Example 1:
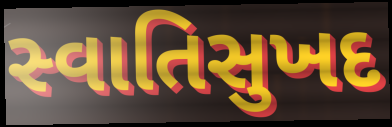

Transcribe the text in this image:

સ્વાતિસુખદ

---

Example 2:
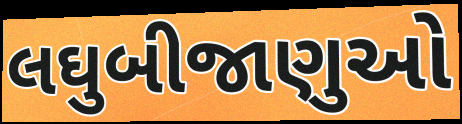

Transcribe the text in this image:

લઘુબીજાણુઓ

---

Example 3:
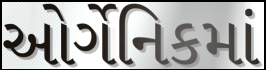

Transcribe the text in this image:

ઓર્ગેનિકમાં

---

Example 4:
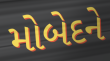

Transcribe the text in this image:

મોબેદને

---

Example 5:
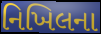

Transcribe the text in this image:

નિખિલના